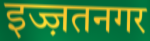
इज्ज़तनगर